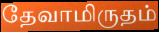
தேவாமிருதம்